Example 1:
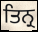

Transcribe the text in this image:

ਤਿਨ੍ਰ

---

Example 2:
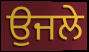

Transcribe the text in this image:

ਉਜਲੇ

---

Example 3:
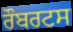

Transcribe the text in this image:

ਰੌਬਰਟਸ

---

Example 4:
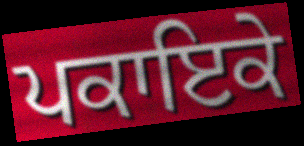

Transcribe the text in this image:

ਪਕਾਇਕੇ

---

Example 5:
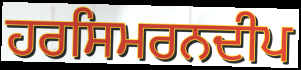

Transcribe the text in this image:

ਹਰਸਿਮਰਨਦੀਪ